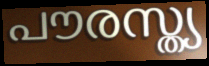
പൗരസ്ത്യ